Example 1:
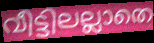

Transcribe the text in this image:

വീട്ടിലല്ലാതെ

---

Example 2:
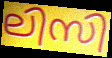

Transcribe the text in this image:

ലിസി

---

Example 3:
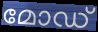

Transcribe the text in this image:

മോഡ്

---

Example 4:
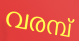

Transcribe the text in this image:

വരമ്പ്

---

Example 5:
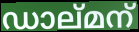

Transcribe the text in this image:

ഡാല്മന്